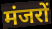
मंजरों